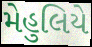
મેહુલિયે